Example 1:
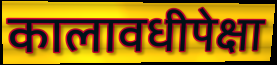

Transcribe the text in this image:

कालावधीपेक्षा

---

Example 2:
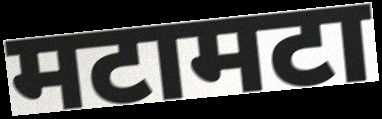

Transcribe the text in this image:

मटामटा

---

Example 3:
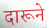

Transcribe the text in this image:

दारूने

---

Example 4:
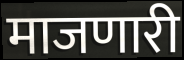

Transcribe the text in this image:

माजणारी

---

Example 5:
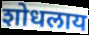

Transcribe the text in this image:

शोधलाय